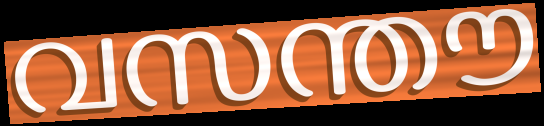
വസന്തൗ